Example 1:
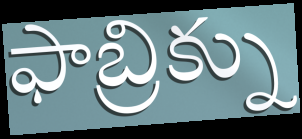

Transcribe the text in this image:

ఫాబ్రిక్ను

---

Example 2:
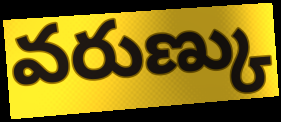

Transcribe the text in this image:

వరుణ్కు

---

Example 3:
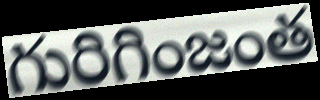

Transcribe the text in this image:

గురిగింజంత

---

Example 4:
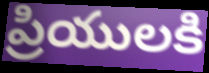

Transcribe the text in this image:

ప్రియులకి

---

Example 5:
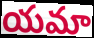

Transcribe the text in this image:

యమా